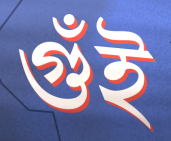
গুঁই